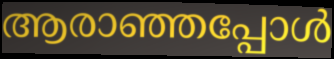
ആരാഞ്ഞപ്പോൾ